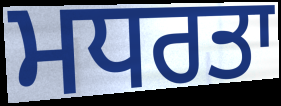
ਮਧਰਤਾ